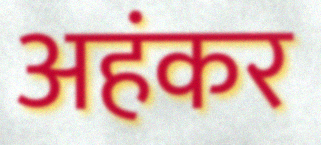
अहंकर